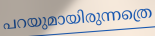
പറയുമായിരുന്നത്രെ